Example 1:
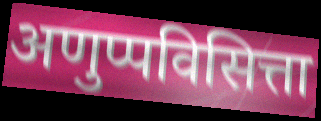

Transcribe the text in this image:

अणुप्पविसित्ता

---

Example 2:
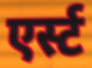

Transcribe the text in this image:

एर्स्ट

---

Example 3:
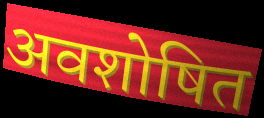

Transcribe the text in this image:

अवशोषित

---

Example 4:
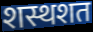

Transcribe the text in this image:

शस्थशत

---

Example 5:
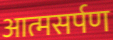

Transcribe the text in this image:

आत्मसर्पण